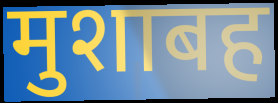
मुशाबह